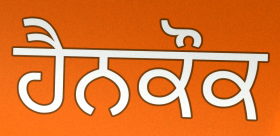
ਹੈਨਕੌਕ